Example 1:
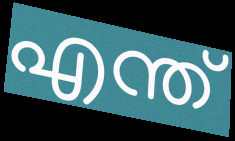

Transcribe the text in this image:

എന്ത്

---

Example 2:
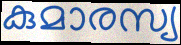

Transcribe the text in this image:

കുമാരസ്യ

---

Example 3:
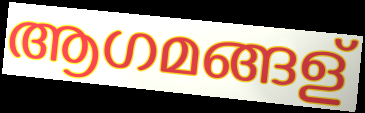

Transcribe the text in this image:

ആഗമങ്ങള്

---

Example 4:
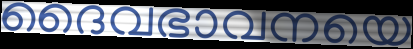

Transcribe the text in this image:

ദൈവഭാവനയെ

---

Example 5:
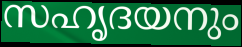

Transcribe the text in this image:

സഹൃദയനും